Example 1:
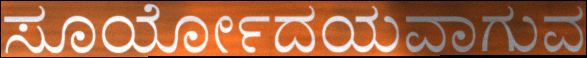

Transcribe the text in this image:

ಸೂರ್ಯೋದಯವಾಗುವ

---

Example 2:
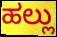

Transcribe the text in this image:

ಹಲ್ಲು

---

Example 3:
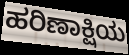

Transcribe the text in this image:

ಹರಿಣಾಕ್ಷಿಯ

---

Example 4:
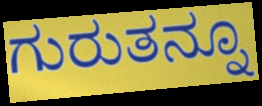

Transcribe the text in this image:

ಗುರುತನ್ನೂ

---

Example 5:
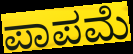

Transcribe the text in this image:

ಪಾಪಮೆ